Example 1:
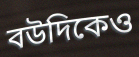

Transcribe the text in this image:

বউদিকেও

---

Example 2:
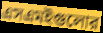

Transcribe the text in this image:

এসএমইগুলোর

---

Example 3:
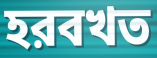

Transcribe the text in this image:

হরবখত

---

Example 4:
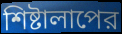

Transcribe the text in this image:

শিষ্টালাপের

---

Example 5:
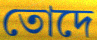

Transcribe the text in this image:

তোদে